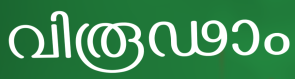
വിരൂഢാം